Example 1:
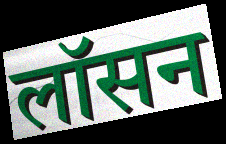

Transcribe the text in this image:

लॉसन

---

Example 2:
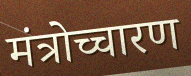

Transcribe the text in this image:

मंत्रोच्चारण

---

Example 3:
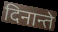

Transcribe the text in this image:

दिनान्ते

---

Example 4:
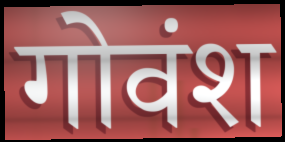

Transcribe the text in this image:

गोवंश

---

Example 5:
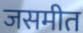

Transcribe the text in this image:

जसमीत